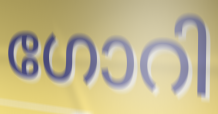
ഗോറി